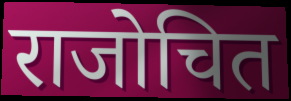
राजोचित